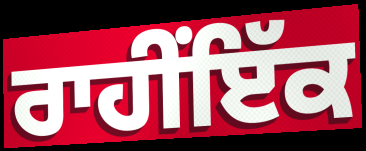
ਰਾਹੀਂਇੱਕ